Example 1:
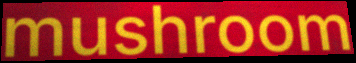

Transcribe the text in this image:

mushroom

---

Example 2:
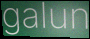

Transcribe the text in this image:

galun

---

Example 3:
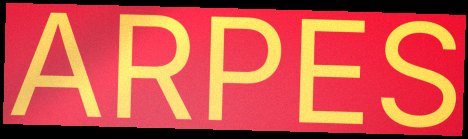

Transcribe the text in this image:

ARPES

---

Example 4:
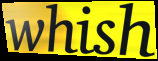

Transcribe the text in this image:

whish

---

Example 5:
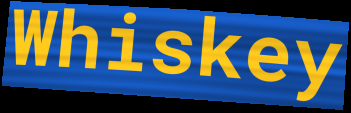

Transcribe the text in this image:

Whiskey